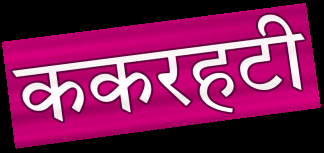
ककरहटी